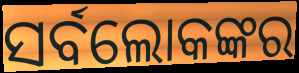
ସର୍ବଲୋକଙ୍କର